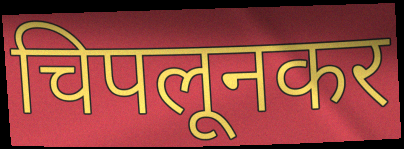
चिपलूनकर